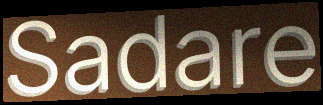
Sadare